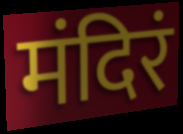
मंदिरं